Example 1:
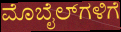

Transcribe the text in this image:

ಮೊಬೈಲ್‌ಗಳಿಗೆ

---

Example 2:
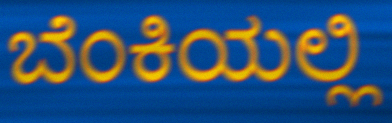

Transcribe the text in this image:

ಬೆಂಕಿಯಲ್ಲಿ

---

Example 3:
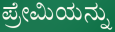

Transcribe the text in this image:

ಪ್ರೇಮಿಯನ್ನು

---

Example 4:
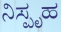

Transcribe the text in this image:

ನಿಸ್ಪೃಹ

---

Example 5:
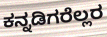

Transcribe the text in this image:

ಕನ್ನಡಿಗರೆಲ್ಲರ